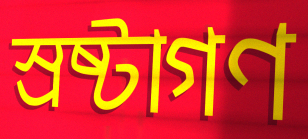
স্রষ্টাগণ